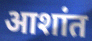
आशांत